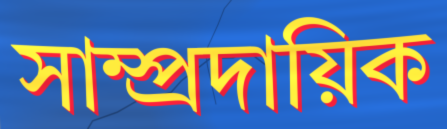
সাম্প্ৰদায়িক